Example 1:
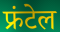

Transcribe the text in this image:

फ्रंटेल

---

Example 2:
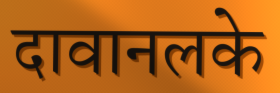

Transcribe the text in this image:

दावानलके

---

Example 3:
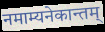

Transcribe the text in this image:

नमाम्यनेकान्तम्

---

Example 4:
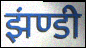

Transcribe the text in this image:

झंण्डी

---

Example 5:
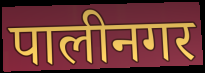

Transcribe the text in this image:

पालीनगर